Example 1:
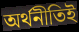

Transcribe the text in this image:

অর্থনীতিই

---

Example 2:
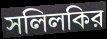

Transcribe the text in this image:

সলিলকির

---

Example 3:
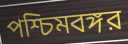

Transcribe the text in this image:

পশ্চিমবঙ্গর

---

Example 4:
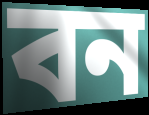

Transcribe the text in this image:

বন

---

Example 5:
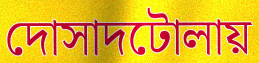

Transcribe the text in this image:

দোসাদটোলায়